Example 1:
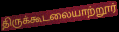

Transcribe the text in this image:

திருக்கூடலையாற்றூர்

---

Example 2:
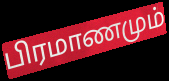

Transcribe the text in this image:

பிரமாணமும்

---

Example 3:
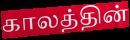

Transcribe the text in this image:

காலத்தின்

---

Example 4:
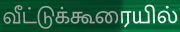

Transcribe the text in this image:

வீட்டுக்கூரையில்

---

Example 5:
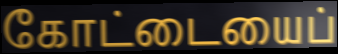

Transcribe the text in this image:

கோட்டையைப்